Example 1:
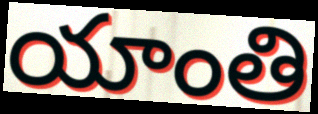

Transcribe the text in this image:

యాంతి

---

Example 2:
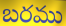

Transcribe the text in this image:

బరము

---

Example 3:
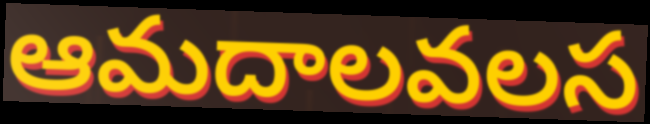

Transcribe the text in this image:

ఆమదాలవలస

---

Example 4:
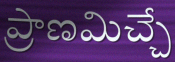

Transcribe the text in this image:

ప్రాణమిచ్చే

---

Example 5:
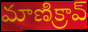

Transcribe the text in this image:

మాణిక్రావ్